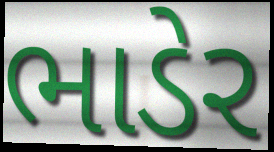
ભાડેર